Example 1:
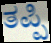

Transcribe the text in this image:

ತಪ್ಪಿ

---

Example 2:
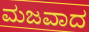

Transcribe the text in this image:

ಮಜವಾದ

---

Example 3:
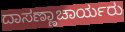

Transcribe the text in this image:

ದಾಸಣ್ಣಾಚಾರ್ಯರು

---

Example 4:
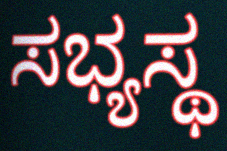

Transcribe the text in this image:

ಸಭ್ಯಸ್ಥ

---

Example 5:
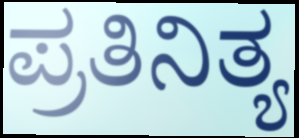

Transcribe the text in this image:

ಪ್ರತಿನಿತ್ಯ